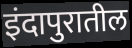
इंदापुरातील